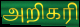
அறிகரி